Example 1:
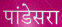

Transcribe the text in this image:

पांडेसरा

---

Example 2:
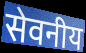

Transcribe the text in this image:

सेवनीय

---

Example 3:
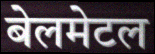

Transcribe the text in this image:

बेलमेटल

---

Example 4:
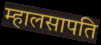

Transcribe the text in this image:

म्हालसापति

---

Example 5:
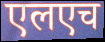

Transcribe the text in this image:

एलएच